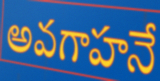
అవగాహనే